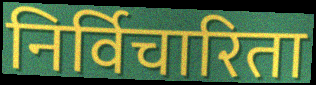
निर्विचारिता